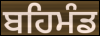
ਬਹਿਮੰਡ